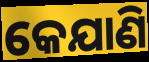
କେଯାଣି